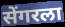
सेंगरला